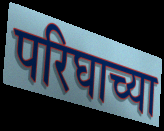
परिघाच्या